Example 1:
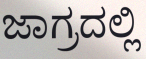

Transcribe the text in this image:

ಜಾಗ್ರದಲ್ಲಿ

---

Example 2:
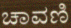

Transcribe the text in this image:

ಚಾವಣಿ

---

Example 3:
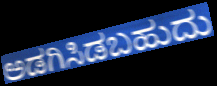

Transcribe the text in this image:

ಅಡಗಿಸಿಡಬಹುದು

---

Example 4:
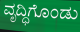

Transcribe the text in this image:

ವೃದ್ಧಿಗೊಂಡು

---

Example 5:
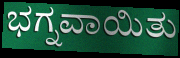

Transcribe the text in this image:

ಭಗ್ನವಾಯಿತು